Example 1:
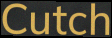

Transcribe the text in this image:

Cutch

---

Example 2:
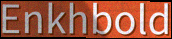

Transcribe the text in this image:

Enkhbold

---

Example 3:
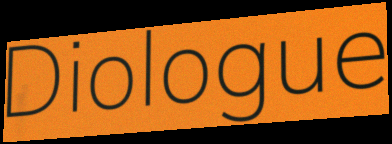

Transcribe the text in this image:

Diologue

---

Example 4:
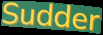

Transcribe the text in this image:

Sudder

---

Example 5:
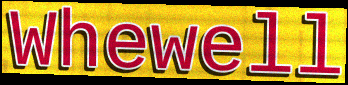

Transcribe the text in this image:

Whewell